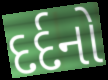
દર્દનો